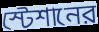
স্টেশানের